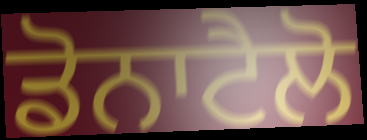
ਡੋਨਾਟੈਲੋ